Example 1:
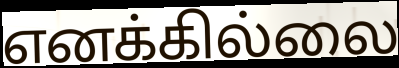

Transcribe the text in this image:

எனக்கில்லை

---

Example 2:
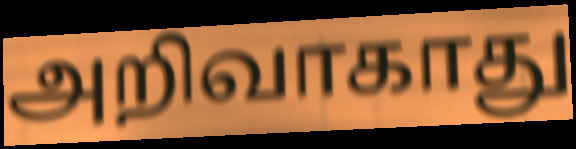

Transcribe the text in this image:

அறிவாகாது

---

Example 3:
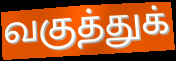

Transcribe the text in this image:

வகுத்துக்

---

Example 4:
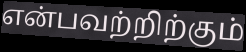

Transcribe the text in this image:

என்பவற்றிற்கும்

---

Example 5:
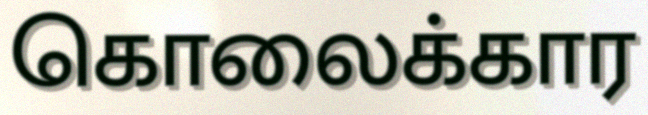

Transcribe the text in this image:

கொலைக்கார